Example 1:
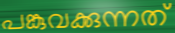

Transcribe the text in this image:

പങ്കുവക്കുന്നത്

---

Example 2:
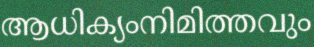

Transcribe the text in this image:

ആധിക്യംനിമിത്തവും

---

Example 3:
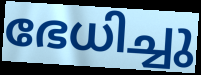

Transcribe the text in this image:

ഭേധിച്ചു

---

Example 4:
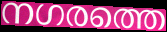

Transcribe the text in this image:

നഗരത്തെ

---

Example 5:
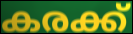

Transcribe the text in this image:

കരക്ക്